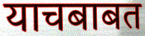
याचबाबत